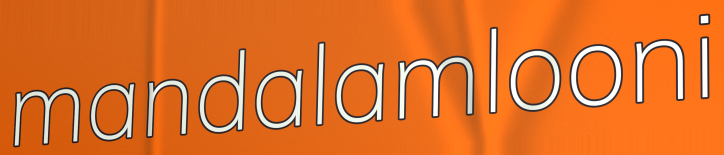
mandalamlooni